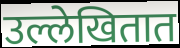
उल्लेखितात